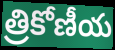
త్రికోణీయ